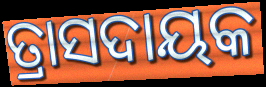
ତ୍ରାସଦାୟକ